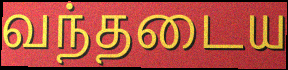
வந்தடைய